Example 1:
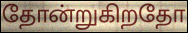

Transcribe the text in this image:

தோன்றுகிறதோ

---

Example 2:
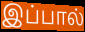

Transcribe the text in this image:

இப்பால்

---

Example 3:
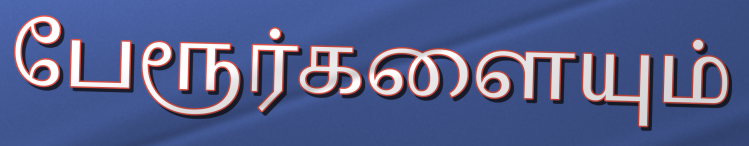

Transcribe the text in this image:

பேரூர்களையும்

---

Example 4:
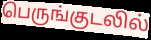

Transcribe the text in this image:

பெருங்குடலில்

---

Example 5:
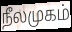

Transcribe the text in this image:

நீலமுகம்